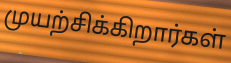
முயற்சிக்கிறார்கள்